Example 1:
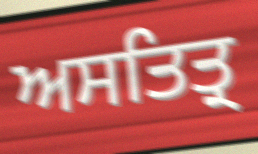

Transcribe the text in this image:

ਅਸਤਿਤ੍ਰ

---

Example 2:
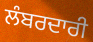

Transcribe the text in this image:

ਲੰਬਰਦਾਰੀ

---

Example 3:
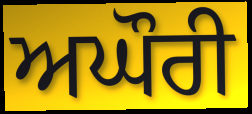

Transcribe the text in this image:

ਅਘੌਰੀ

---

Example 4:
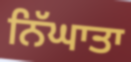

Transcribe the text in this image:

ਨਿੱਘਾਤਾ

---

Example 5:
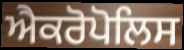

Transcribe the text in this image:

ਐਕਰੋਪੋਲਿਸ